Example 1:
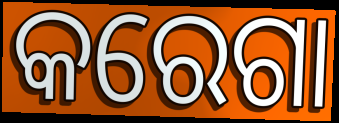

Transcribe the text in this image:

କରେଗା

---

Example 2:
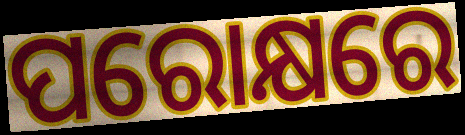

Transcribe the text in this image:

ପରୋକ୍ଷରେ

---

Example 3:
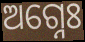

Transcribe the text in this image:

ଅଗ୍ନେଃ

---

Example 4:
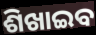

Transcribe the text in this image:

ଶିଖାଇବ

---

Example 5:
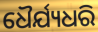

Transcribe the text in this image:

ଧୈର୍ଯ୍ୟଧରି